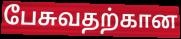
பேசுவதற்கான